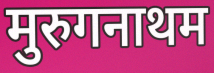
मुरुगनाथम